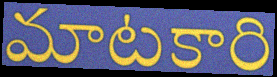
మాటకారి